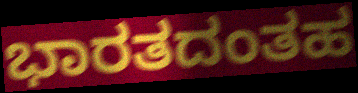
ಭಾರತದಂತಹ